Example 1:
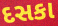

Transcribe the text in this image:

દસકા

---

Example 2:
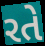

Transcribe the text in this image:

રતે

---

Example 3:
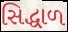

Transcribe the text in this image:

સિદ્ધાળ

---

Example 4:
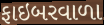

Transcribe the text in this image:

ફાઇબરવાળા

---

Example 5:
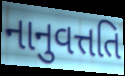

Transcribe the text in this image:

નાનુવત્તતિ